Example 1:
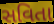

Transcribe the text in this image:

સવિતા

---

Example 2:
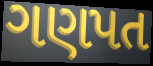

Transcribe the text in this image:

ગણપત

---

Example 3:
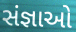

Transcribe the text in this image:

સંજ્ઞાઓ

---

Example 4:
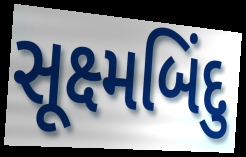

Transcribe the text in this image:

સૂક્ષ્મબિંદુ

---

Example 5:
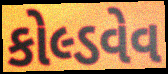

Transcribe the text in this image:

કોલ્ડવેવ